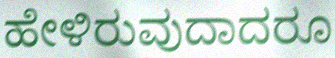
ಹೇಳಿರುವುದಾದರೂ